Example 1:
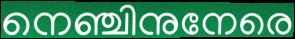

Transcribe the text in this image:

നെഞ്ചിനുനേരെ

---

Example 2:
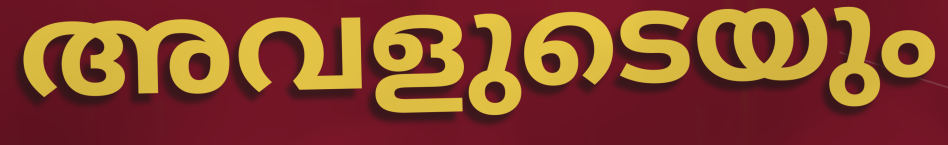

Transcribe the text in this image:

അവളുടെയും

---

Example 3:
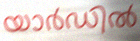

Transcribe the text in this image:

യാർഡിൽ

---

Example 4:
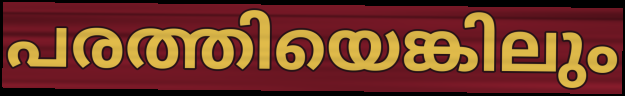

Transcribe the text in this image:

പരത്തിയെങ്കിലും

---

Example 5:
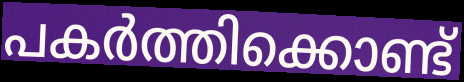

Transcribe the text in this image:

പകർത്തിക്കൊണ്ട്